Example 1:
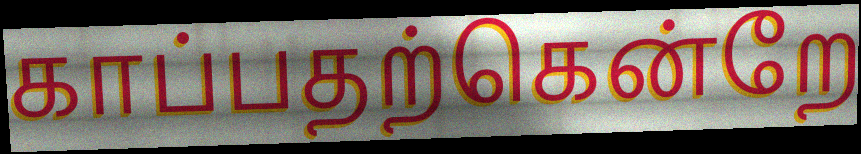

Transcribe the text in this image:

காப்பதற்கென்றே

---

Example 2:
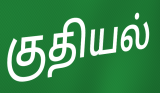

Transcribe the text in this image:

குதியல்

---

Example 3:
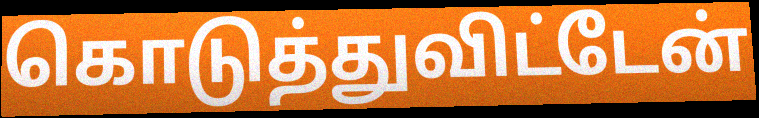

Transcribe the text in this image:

கொடுத்துவிட்டேன்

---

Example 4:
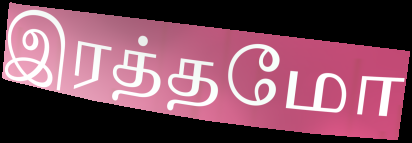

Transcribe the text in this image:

இரத்தமோ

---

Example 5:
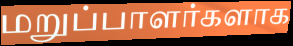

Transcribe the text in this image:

மறுப்பாளர்களாக